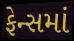
ફેન્સમાં